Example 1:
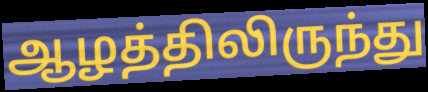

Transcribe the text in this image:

ஆழத்திலிருந்து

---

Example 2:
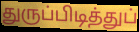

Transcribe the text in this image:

துருப்பிடித்துப்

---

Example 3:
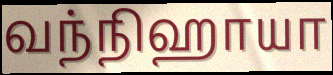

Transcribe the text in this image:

வந்நிஹாயா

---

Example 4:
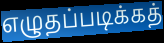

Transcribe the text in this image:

எழுதப்படிக்கத்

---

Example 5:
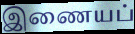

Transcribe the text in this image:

இணையப்